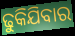
ଢୁକିଯିବାର